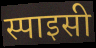
स्पाइसी